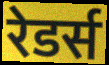
रेडर्स